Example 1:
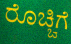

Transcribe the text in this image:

ರೊಚ್ಚಿಗೆ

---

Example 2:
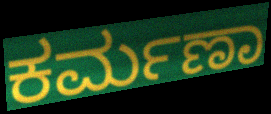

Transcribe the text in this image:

ಕರ್ಮಣಾ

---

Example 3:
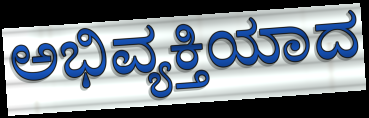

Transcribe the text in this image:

ಅಭಿವ್ಯಕ್ತಿಯಾದ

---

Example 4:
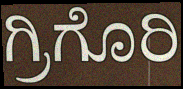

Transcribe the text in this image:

ಗ್ರಿಗೊರಿ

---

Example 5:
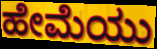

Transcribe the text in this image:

ಹೇಮೆಯು